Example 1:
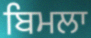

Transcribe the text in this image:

ਬਿਮਲਾ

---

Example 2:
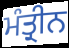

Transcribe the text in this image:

ਮੰਤ੍ਰੀਨ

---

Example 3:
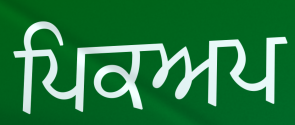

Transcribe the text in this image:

ਪਿਕਅਪ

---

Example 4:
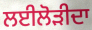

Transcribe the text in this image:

ਲਈਲੋੜੀਦਾ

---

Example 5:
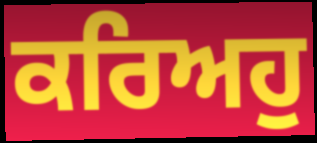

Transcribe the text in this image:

ਕਰਿਅਹੁ